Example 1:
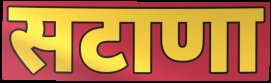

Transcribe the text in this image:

सटाणा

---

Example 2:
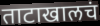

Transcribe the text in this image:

ताटाखालचं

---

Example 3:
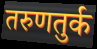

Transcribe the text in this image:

तरुणतुर्क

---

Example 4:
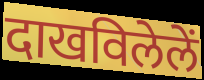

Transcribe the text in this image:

दाखविलेलें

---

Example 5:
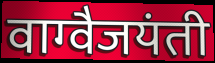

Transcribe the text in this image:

वाग्वैजयंती